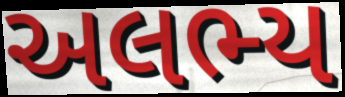
અલભ્ય